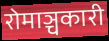
रोमाञ्चकारी